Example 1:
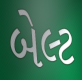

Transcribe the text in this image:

બેલ્ટ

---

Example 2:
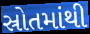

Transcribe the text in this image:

સ્રોતમાંથી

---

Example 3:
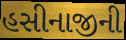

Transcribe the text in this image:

હસીનાજીની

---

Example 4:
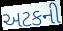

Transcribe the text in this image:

અટકની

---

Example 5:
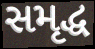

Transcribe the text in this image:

સમૃદ્ધ